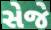
સેજે